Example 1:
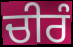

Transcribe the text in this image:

ਚੀਰੰ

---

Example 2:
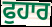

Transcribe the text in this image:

ਫੁਹਾਰ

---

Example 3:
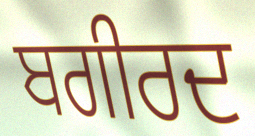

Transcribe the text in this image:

ਬਗੀਰਦ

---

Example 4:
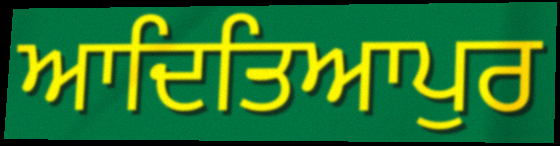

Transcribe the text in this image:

ਆਦਿਤਿਆਪੁਰ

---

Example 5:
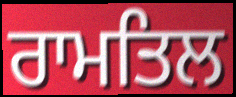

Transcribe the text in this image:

ਰਾਮਤਿਲ